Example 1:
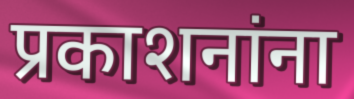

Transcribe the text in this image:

प्रकाशनांना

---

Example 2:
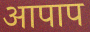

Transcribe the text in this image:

आपाप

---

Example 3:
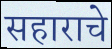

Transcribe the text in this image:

सहाराचे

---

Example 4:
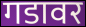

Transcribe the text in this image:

गडावर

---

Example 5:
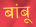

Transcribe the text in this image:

बांबू